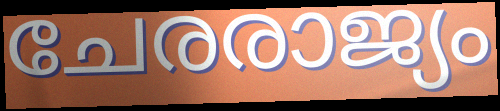
ചേരരാജ്യം